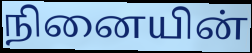
நினையின்